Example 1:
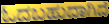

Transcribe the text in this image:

ಓದಬಹುದಾಗಿದೆ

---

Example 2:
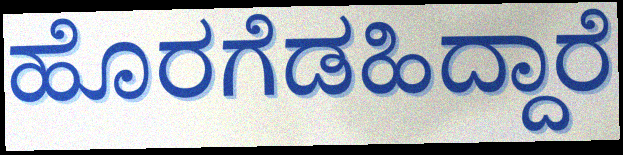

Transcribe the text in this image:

ಹೊರಗೆಡಹಿದ್ದಾರೆ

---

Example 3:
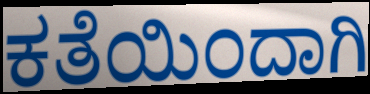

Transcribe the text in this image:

ಕತೆಯಿಂದಾಗಿ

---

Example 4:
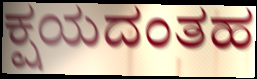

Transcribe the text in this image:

ಕ್ಷಯದಂತಹ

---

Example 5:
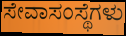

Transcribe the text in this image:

ಸೇವಾಸಂಸ್ಥೆಗಳು